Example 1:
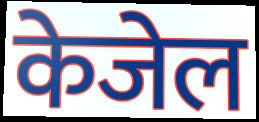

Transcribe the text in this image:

केजेल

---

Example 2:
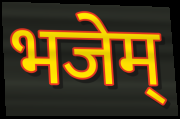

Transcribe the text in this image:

भजेम्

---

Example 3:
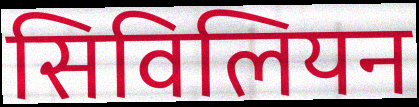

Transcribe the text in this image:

सिविलियन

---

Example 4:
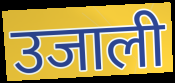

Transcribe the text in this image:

उजाली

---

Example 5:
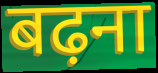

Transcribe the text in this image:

बढ़ना